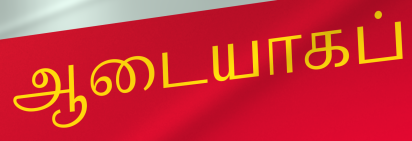
ஆடையாகப்